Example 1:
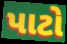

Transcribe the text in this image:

પાટો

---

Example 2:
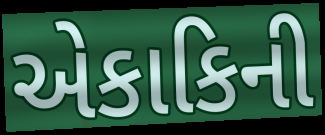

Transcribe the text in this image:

એકાકિની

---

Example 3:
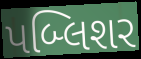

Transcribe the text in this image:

પબ્લિશર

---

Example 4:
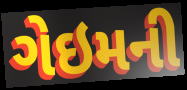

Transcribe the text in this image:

ગેઇમની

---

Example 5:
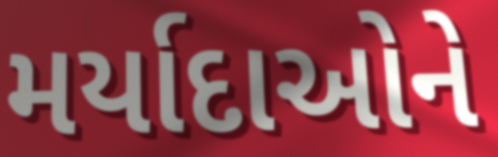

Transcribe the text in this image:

મર્યાદાઓને